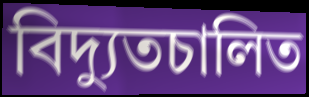
বিদ্যুতচালিত